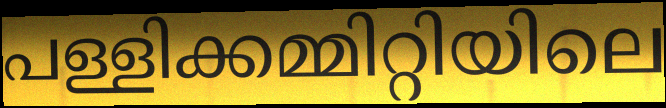
പള്ളിക്കമ്മിറ്റിയിലെ